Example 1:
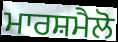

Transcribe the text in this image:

ਮਾਰਸ਼ਮੈਲੋ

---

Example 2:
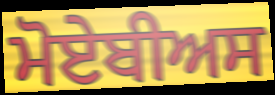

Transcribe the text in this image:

ਮੋਏਬੀਅਸ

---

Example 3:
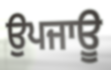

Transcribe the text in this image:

ਉਪਜਾਊ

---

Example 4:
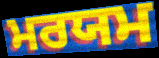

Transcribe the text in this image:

ਮਰਯਮ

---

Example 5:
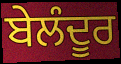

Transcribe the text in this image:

ਬੇਲੰਦੂਰ